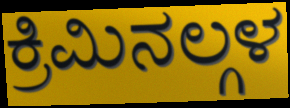
ಕ್ರಿಮಿನಲ್ಗಳ